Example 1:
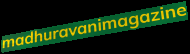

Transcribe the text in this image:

madhuravanimagazine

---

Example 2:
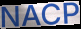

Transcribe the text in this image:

NACP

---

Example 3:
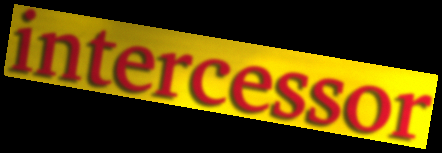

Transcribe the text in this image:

intercessor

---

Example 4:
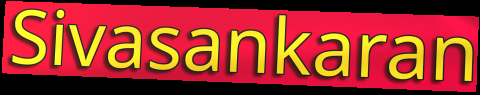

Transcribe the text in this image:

Sivasankaran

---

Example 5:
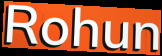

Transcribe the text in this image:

Rohun